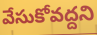
వేసుకోవద్దని